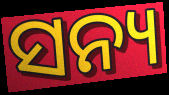
ସନ୍ୟ